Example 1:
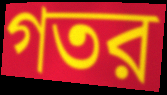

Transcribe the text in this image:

গতর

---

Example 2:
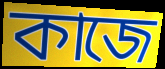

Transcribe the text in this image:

কাজে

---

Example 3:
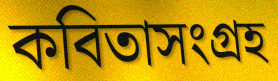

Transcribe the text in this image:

কবিতাসংগ্রহ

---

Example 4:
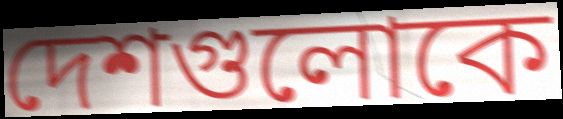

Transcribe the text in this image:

দেশগুলোকে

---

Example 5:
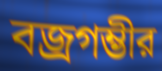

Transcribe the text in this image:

বজ্রগম্ভীর